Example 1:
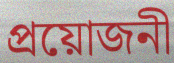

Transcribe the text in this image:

প্ৰয়োজনী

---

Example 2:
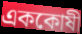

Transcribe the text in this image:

এককোষী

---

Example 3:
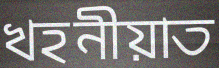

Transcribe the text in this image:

খহনীয়াত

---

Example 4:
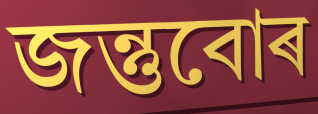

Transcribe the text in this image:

জন্তুবোৰ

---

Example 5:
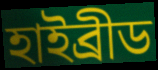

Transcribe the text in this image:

হাইব্ৰীড